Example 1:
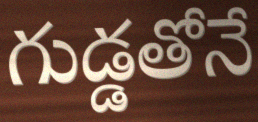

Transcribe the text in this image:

గుడ్డతోనే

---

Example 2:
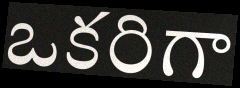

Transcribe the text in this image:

ఒకరిగా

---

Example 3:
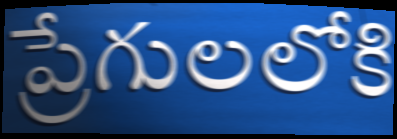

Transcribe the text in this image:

ప్రేగులలోకి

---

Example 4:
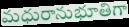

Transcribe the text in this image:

మధురానుభూతిగా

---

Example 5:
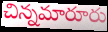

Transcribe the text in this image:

చిన్నమారూరు